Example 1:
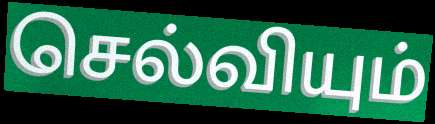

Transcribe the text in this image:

செல்வியும்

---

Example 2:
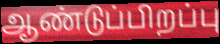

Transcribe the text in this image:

ஆண்டுப்பிறப்பு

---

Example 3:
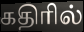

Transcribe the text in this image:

கதிரில்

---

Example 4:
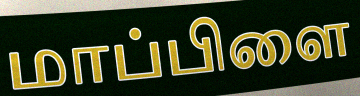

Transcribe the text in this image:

மாப்பிளை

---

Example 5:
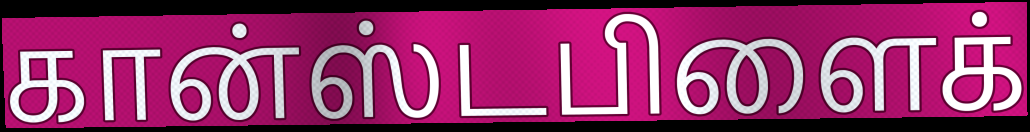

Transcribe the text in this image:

கான்ஸ்டபிளைக்